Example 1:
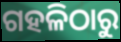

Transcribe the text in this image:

ଗହଳିଠାରୁ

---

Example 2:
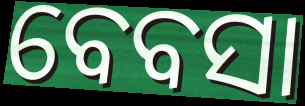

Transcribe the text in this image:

ବେବସା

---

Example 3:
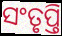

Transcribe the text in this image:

ସଂତୃପ୍ତି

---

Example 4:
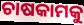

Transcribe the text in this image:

ଚାଷକାମକୁ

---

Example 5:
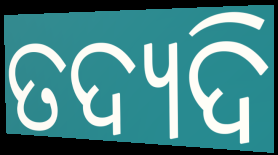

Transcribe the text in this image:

ତଦ୍ୟଦି